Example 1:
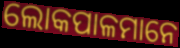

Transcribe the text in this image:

ଲୋକପାଳମାନେ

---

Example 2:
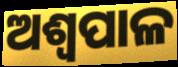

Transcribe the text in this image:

ଅଶ୍ୱପାଳ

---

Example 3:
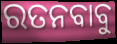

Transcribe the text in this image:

ରତନବାବୁ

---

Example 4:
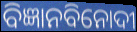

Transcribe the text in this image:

ବିଜ୍ଞାନବିନୋଦୀ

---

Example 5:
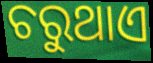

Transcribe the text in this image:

ଚରୁଥାଏ